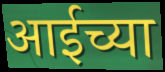
आईच्या